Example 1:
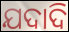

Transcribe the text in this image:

ଯଦାଦି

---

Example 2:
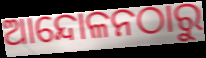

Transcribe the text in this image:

ଆନ୍ଦୋଳନଠାରୁ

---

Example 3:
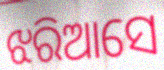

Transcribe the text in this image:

ଝରିଆସେ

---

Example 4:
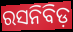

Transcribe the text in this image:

ରସନିବିଡ଼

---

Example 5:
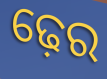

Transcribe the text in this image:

ଢ଼େର